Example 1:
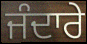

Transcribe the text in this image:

ਜੰਦਾਰੇ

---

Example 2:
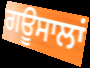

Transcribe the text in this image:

ਗਊਸਾਲਾਂ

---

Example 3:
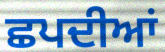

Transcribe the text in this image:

ਛਪਦੀਆਂ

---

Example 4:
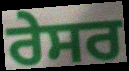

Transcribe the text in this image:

ਰੇਸਰ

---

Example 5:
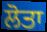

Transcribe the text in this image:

ਲੋਤਾ